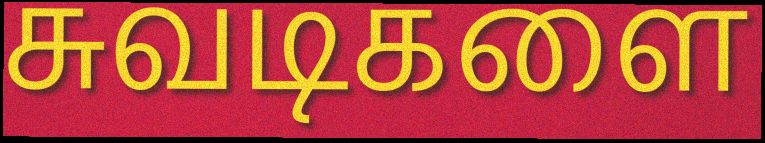
சுவடிகளை